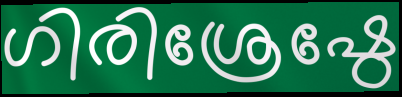
ഗിരിശ്രേഷ്ഠേ